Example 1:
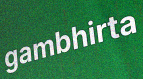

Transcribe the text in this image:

gambhirta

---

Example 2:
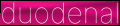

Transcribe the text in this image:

duodenal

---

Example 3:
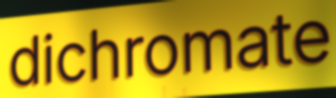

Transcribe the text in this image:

dichromate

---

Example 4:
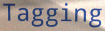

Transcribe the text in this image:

Tagging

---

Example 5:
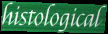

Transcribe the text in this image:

histological